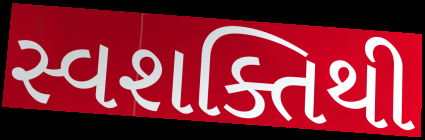
સ્વશક્તિથી